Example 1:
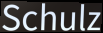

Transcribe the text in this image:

Schulz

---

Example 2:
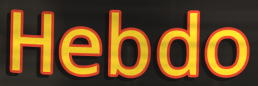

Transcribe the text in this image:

Hebdo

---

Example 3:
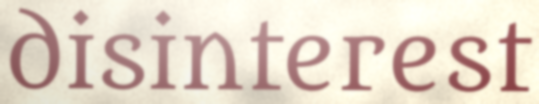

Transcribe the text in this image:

disinterest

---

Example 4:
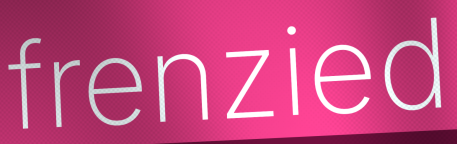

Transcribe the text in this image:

frenzied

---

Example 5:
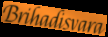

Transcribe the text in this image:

Brihadisvara